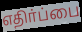
எதிர்ப்பை